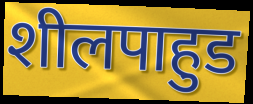
शीलपाहुड